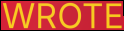
WROTE